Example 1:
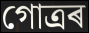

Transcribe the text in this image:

গোত্ৰৰ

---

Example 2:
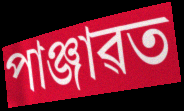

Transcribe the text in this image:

পাঞ্জাৱত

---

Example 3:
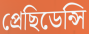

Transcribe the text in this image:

প্ৰেছিডেন্সি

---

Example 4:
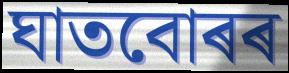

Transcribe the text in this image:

ঘাতবোৰৰ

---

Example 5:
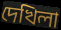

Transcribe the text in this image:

দেখিলা